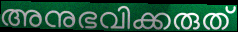
അനുഭവിക്കരുത്